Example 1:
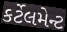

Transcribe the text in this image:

કર્ટેલમેન્ટ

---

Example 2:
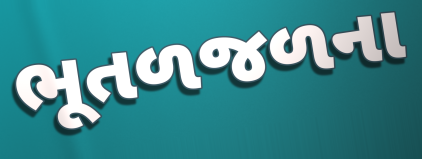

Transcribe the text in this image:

ભૂતળજળના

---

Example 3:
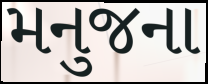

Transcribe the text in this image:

મનુજના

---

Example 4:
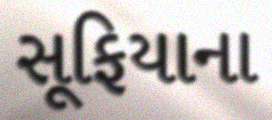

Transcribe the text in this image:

સૂફિયાના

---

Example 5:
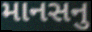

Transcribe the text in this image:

માનસનુ